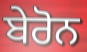
ਬੇਰੋਨ